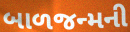
બાળજન્મની